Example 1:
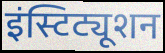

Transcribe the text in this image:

इंस्टिट्यूशन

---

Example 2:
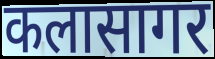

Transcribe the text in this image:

कलासागर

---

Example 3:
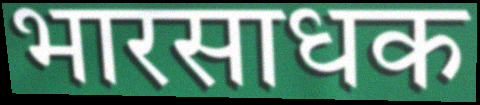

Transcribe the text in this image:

भारसाधक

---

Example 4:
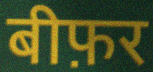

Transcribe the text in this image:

बीफ़र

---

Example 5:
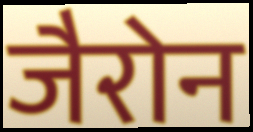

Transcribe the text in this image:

जैरोन